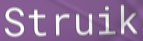
Struik